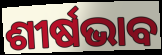
ଶୀର୍ଷଭାବ